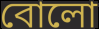
বোলো